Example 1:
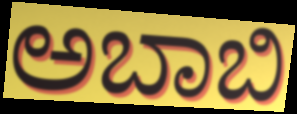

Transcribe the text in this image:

ಅಬಾಬಿ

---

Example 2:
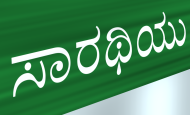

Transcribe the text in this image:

ಸಾರಥಿಯು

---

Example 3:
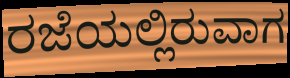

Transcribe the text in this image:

ರಜೆಯಲ್ಲಿರುವಾಗ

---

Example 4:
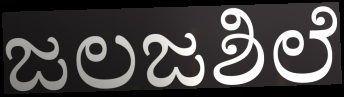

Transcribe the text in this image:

ಜಲಜಶಿಲೆ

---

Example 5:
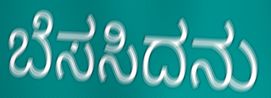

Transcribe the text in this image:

ಬೆಸಸಿದನು